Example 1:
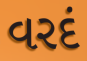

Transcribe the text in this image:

વરદં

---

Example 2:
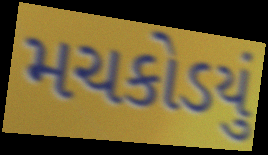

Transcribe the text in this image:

મચકોડયું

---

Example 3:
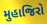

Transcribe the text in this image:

મુહાજિરો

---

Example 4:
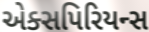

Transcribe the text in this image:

એક્સપિરિયન્સ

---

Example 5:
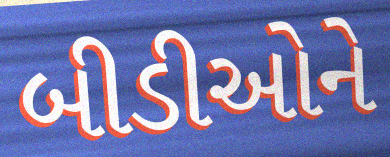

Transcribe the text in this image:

બીડીઓને